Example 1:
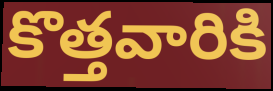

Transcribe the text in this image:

కొత్తవారికి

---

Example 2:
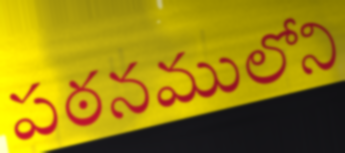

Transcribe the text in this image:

పఠనములోని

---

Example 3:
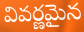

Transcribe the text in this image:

వివర్ణమైన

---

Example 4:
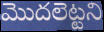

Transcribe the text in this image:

మొదలెట్టని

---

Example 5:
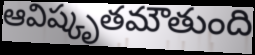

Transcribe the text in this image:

ఆవిష్కృతమౌతుంది